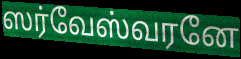
ஸர்வேஸ்வரனே